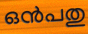
ഒൻപതു